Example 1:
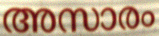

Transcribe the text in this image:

അസാരം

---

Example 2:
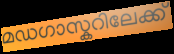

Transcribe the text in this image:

മഡഗാസ്കറിലേക്ക്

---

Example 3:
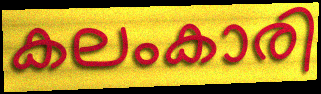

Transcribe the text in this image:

കലംകാരി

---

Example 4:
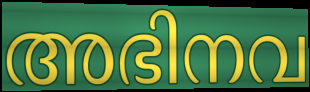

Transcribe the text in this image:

അഭിനവ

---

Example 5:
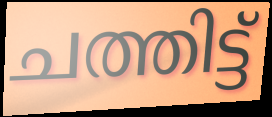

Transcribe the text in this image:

ചത്തിട്ട്